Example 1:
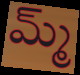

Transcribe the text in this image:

మ్మ్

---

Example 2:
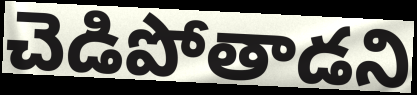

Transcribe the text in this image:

చెడిపోతాడని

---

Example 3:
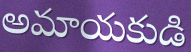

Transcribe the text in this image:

అమాయకుడి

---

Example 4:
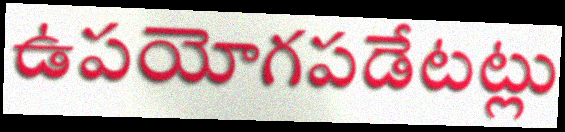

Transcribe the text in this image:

ఉపయోగపడేటట్లు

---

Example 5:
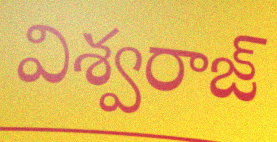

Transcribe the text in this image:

విశ్వరాజ్